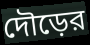
দৌড়ের